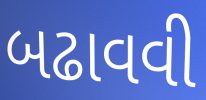
બઢાવવી